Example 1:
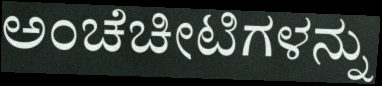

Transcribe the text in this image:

ಅಂಚೆಚೀಟಿಗಳನ್ನು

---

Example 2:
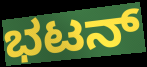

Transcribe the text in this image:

ಭಟನ್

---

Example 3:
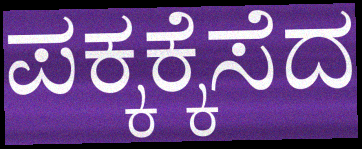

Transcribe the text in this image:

ಪಕ್ಕಕ್ಕೆಸೆದ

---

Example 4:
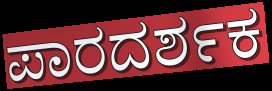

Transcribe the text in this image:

ಪಾರದರ್ಶಕ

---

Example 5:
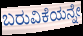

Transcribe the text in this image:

ಬರುವಿಕೆಯನ್ನೇ